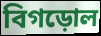
বিগড়োল